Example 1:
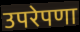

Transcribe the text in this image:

उपरेपणा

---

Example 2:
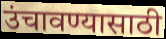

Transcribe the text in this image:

उंचावण्यासाठी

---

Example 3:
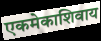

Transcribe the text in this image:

एकमेकाशिवाय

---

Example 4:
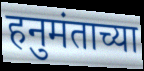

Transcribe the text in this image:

हनुमंताच्या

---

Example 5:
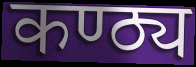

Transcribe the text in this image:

कण्ठ्य